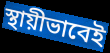
স্থায়ীভাবেই